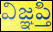
విజ్ఞప్తి